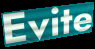
Evite